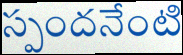
స్పందనేంటి